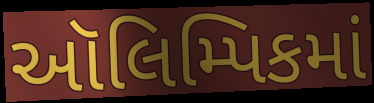
ઑલિમ્પિકમાં